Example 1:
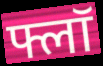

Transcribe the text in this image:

फ्लॉ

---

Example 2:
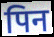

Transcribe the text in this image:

पिन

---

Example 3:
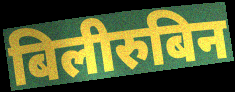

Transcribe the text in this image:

बिलीरुबिन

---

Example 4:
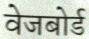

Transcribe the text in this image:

वेजबोर्ड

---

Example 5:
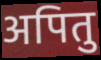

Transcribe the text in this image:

अपितु